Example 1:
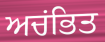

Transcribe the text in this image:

ਅਚਂਭਿਤ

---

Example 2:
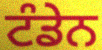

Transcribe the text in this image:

ਟੰਡੇਨ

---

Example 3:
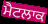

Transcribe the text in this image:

ਮੈਟਲਾਕ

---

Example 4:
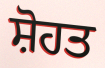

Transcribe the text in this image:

ਸ਼ੋਹਤ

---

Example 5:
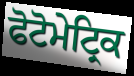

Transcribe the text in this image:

ਫੋਟੋਮੇਟ੍ਰਿਕ